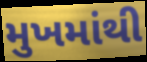
મુખમાંથી